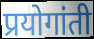
प्रयोगांती